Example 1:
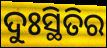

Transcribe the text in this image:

ଦୁଃସ୍ଥିତିର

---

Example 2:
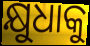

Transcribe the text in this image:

କ୍ଷୁଧାକୁ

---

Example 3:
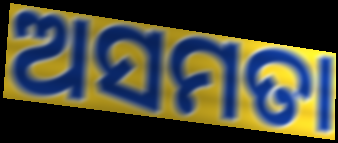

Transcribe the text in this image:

ଅସମତା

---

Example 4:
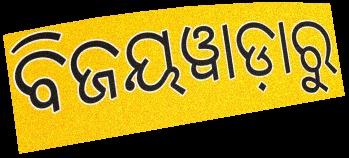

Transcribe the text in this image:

ବିଜୟୱାଡ଼ାରୁ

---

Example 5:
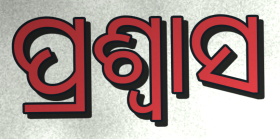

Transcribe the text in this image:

ପ୍ରଶ୍ଵାସ